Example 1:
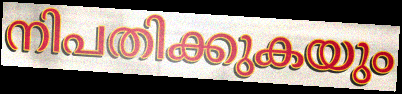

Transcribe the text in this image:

നിപതിക്കുകയും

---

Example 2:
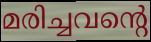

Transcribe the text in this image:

മരിച്ചവന്റെ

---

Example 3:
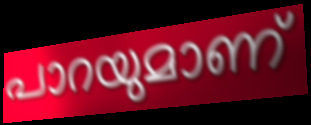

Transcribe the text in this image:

പാറയുമാണ്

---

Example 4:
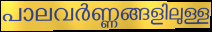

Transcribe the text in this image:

പാലവർണ്ണങ്ങളിലുള്ള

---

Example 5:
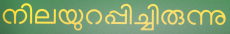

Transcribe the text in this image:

നിലയുറപ്പിച്ചിരുന്നു